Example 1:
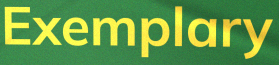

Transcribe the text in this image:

Exemplary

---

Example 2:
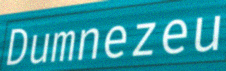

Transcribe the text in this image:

Dumnezeu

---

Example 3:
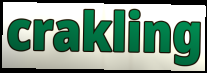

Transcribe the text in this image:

crakling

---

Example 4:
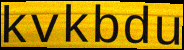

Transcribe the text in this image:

kvkbdu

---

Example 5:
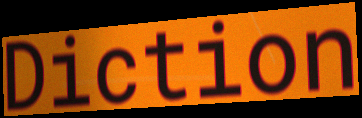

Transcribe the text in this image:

Diction